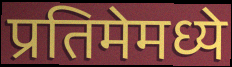
प्रतिमेमध्ये